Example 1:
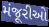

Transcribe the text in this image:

મંજૂરીઓ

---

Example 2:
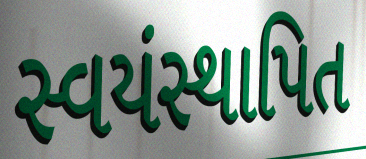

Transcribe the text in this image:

સ્વયંસ્થાપિત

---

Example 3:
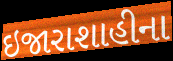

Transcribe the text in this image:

ઇજારાશાહીના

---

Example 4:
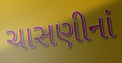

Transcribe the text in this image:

ચાસણીનાં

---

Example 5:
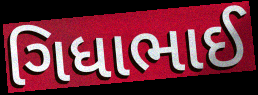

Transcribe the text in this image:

ગિધાભાઈ